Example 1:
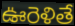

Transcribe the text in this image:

ఊరెళితే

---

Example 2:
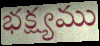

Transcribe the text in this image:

భక్ష్యము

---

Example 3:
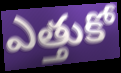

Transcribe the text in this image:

ఎత్తుకో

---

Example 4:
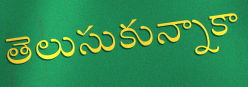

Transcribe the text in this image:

తెలుసుకున్నాకా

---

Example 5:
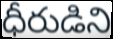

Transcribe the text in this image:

ధీరుడిని